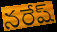
నరేష్